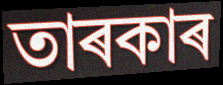
তাৰকাৰ